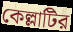
কেল্লাটির